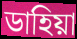
ডাহিয়া